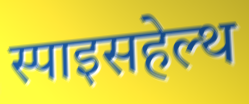
स्पाइसहेल्थ